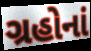
ગ્રહોનાં